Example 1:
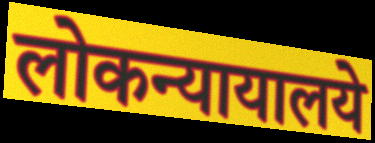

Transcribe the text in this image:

लोकन्यायालये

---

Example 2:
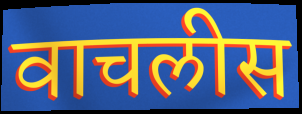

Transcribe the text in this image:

वाचलीस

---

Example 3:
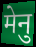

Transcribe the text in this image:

मेनु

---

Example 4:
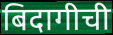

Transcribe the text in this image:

बिदागीची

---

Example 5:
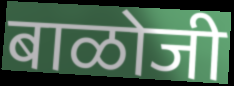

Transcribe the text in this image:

बाळोजी